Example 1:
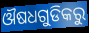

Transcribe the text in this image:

ଔଷଧଗୁଡିକରୁ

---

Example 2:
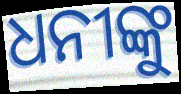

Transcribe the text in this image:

ଧନୀଙ୍କୁ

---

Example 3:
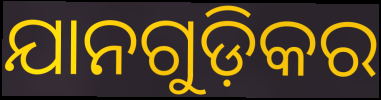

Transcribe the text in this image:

ଯାନଗୁଡ଼ିକର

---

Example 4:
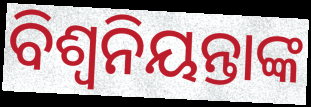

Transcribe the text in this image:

ବିଶ୍ବନିୟନ୍ତାଙ୍କ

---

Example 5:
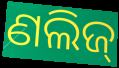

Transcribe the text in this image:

ଣଲିଜ୍